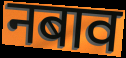
नबाव